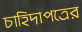
চাহিদাপত্রের